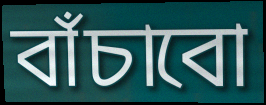
বাঁচাবো